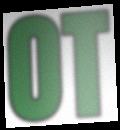
OT